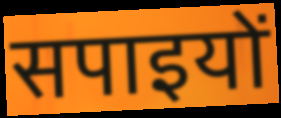
सपाइयों